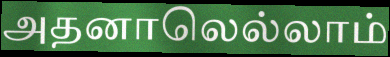
அதனாலெல்லாம்